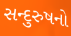
સન્દુરુષનો